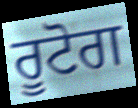
ਰੂਟੋਗ